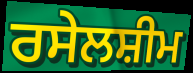
ਰਸੇਲਸ਼ੀਮ